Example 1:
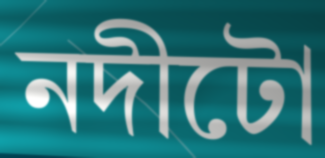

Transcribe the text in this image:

নদীটো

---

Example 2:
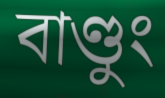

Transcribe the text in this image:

বাণ্ডুং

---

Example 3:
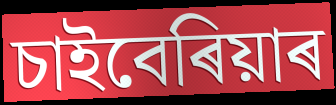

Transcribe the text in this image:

চাইবেৰিয়াৰ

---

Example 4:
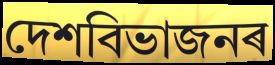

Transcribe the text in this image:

দেশবিভাজনৰ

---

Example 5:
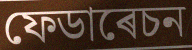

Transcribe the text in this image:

ফেডাৰেচন